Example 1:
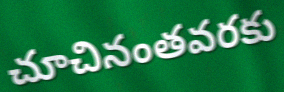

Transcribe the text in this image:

చూచినంతవరకు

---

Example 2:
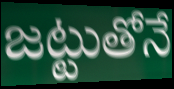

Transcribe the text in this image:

జట్టుతోనే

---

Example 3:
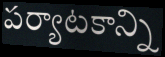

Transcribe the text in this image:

పర్యాటకాన్ని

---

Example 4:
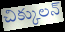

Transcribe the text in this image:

చిక్కులన్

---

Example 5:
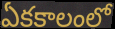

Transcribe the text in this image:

ఏకకాలంలో